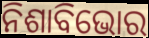
ନିଶାବିଭୋର